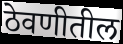
ठेवणीतील